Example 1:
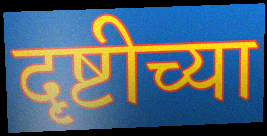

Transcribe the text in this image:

दृष्टीच्या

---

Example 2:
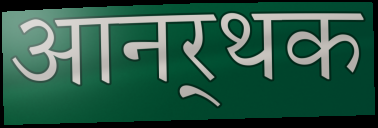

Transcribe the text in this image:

आनर्थक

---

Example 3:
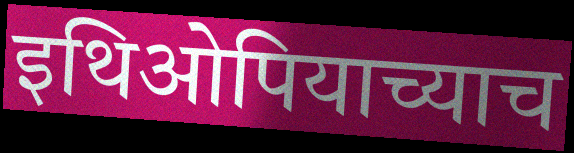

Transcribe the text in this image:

इथिओपियाच्याच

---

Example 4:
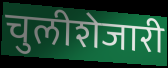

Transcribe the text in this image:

चुलीशेजारी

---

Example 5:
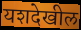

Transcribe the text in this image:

यशदेखील